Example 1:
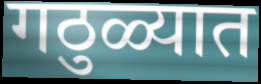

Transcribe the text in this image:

गठुळ्यात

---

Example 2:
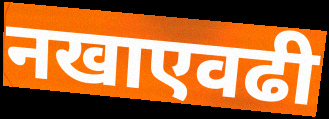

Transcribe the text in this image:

नखाएवढी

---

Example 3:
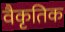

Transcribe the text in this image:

वैकृतिक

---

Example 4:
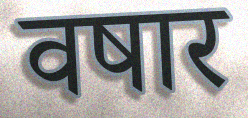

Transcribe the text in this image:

वषार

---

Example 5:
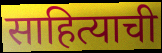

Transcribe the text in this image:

साहित्याची